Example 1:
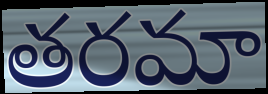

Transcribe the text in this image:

తరమా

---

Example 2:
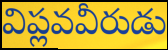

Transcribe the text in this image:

విప్లవవీరుడు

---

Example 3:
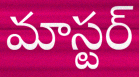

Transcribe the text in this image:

మాస్టర్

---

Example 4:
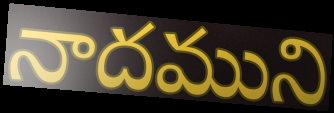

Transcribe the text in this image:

నాదముని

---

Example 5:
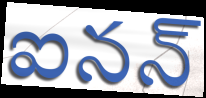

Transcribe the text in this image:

ఐనన్